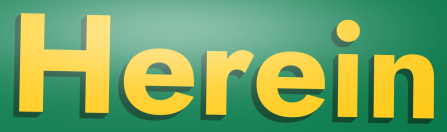
Herein